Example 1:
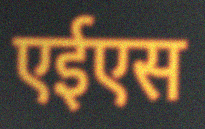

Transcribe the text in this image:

एईएस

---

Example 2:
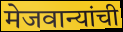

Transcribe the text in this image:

मेजवान्यांची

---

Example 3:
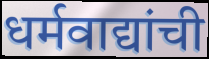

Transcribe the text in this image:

धर्मवाद्यांची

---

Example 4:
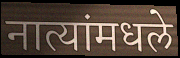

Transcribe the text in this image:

नात्यांमधले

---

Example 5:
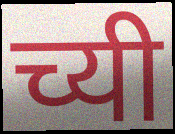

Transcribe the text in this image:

च्यी